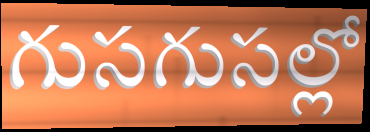
గుసగుసల్లో